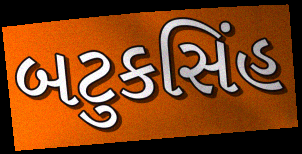
બટુકસિંહ